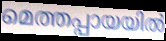
മെത്തപ്പായയിൽ